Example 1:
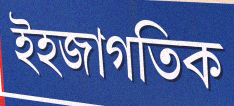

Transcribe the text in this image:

ইহজাগতিক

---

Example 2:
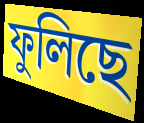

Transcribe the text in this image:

ফুলিছে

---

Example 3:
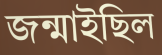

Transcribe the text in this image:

জন্মাইছিল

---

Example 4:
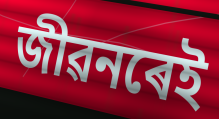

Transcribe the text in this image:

জীৱনৰেই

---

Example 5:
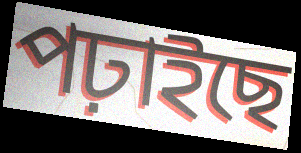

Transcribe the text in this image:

পঢ়াইছে